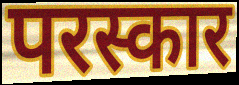
परस्कार